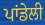
ਪਾਂਡੇਲੀ